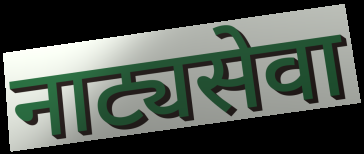
नाट्यसेवा